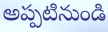
అప్పటినుండి